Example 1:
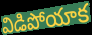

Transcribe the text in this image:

విడిపోయాక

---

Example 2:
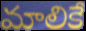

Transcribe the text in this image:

మాలికే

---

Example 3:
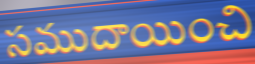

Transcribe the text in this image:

సముదాయించి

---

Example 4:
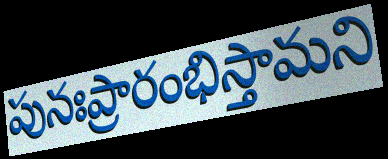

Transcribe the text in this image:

పునఃప్రారంభిస్తామని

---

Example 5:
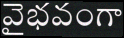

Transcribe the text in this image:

వైభవంగా